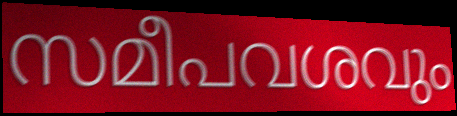
സമീപവശവും